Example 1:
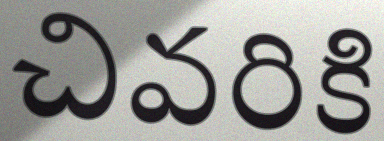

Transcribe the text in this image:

చివరికి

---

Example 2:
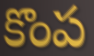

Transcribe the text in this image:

కొంప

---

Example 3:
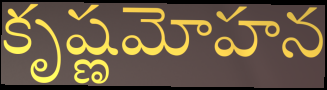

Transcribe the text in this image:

కృష్ణమోహన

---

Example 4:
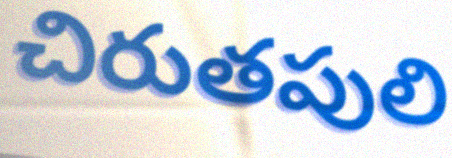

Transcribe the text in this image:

చిరుతపులి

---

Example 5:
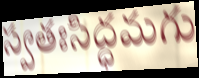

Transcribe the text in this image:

స్వతఃసిద్ధమగు